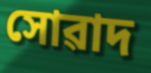
সোৱাদ